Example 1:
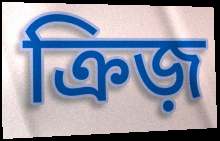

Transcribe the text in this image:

ক্রিজ়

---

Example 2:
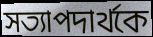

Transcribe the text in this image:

সত্যাপদার্থকে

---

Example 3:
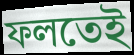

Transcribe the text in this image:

ফলতেই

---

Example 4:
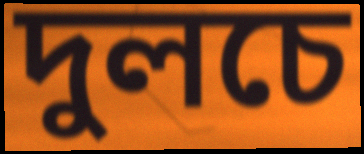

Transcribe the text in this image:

দুলচে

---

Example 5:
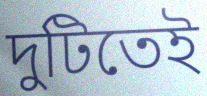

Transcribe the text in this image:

দুটিতেই